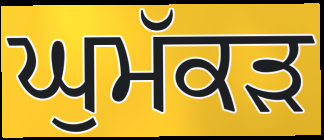
ਘੁਮੱਕਡ਼